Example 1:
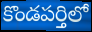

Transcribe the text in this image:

కొండపర్తిలో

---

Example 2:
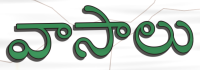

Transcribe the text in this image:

వాసాలు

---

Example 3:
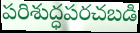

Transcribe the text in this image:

పరిశుద్ధపరచబడి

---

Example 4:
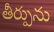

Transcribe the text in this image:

తీర్పును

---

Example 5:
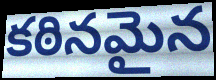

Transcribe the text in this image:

కఠినమైన